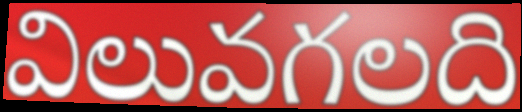
విలువగలది